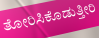
ತೋರಿಸಿಕೊಡುತ್ತೀರಿ